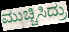
ಮುಚ್ಚಿಸಿದ್ರು